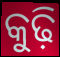
କୁଢ଼ି